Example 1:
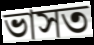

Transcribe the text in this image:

ভাসত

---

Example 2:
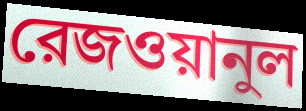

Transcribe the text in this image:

রেজওয়ানুল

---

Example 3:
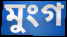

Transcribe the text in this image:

মুংগ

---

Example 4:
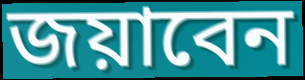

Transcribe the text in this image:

জয়াবেন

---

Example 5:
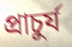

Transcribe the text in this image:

প্রাচুর্য